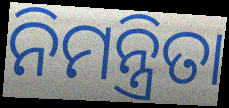
ନିମନ୍ତ୍ରିତା